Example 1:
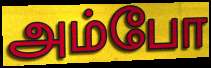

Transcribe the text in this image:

அம்போ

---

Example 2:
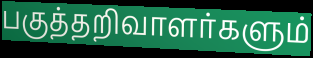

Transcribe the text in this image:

பகுத்தறிவாளர்களும்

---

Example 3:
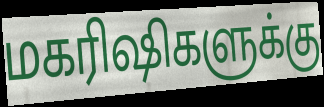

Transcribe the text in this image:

மகரிஷிகளுக்கு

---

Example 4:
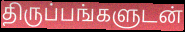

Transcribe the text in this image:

திருப்பங்களுடன்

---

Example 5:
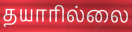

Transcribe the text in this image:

தயாரில்லை